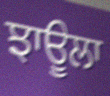
ਝਾਊਲਾ